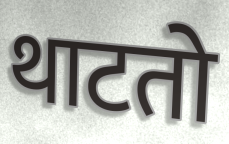
थाटतो